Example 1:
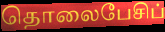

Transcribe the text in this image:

தொலைபேசிப்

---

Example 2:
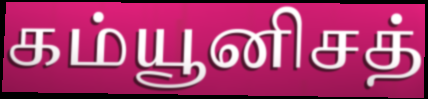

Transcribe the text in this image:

கம்யூனிசத்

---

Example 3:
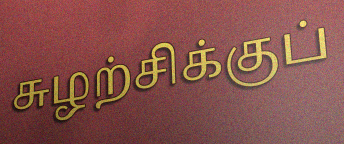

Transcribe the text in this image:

சுழற்சிக்குப்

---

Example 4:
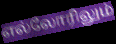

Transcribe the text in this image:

எல்லோரிலும்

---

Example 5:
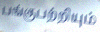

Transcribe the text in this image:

பங்குபற்றியும்